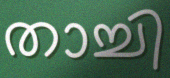
താച്ചി